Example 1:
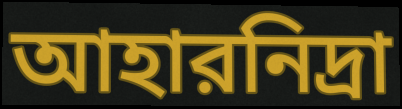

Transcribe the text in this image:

আহারনিদ্রা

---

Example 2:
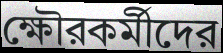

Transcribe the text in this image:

ক্ষৌরকর্মীদের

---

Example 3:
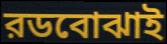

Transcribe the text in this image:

রডবোঝাই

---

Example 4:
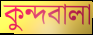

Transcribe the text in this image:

কুন্দবালা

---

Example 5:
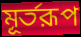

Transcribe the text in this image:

মূর্তরূপ